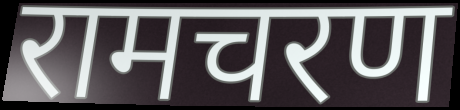
रामचरण